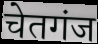
चेतगंज